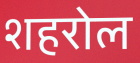
शहरोल